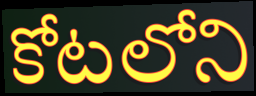
కోటలోని